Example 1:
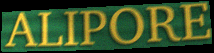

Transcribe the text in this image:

ALIPORE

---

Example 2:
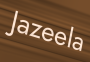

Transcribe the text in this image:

Jazeela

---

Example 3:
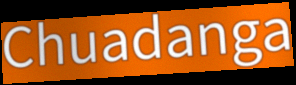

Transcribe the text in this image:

Chuadanga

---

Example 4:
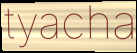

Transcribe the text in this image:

tyacha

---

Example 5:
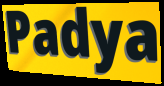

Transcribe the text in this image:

Padya